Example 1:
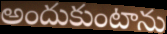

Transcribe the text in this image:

అందుకుంటాను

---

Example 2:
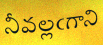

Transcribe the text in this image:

నీవల్లఁగాని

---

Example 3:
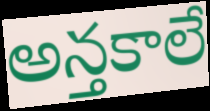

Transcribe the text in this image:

అన్తకాలే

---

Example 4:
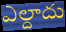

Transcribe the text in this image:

ఎల్దాదు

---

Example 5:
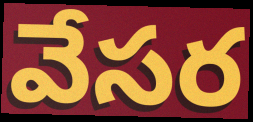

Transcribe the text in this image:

వేసర